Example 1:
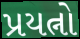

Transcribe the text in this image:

પ્રયત્નો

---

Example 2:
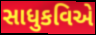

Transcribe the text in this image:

સાધુકવિએ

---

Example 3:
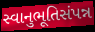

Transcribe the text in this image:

સ્વાનુભૂતિસંપન્ન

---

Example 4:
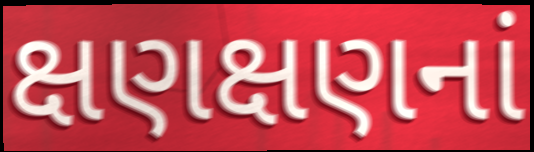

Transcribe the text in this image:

ક્ષણક્ષણનાં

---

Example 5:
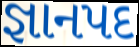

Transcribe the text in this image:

જ્ઞાનપદ